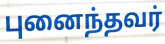
புனைந்தவர்